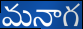
మనాగ